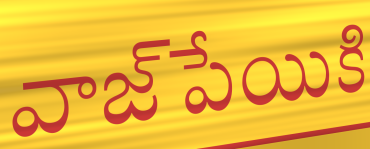
వాజ్‌పేయికి